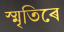
স্মৃতিৰে